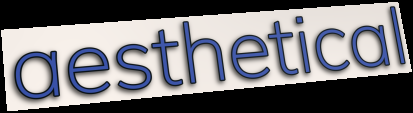
aesthetical